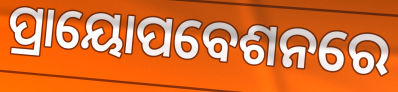
ପ୍ରାୟୋପବେଶନରେ